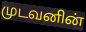
முடவனின்